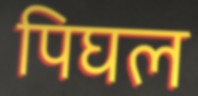
पिघल